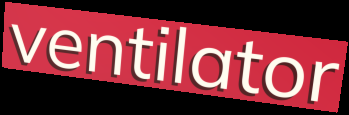
ventilator